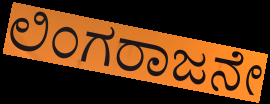
ಲಿಂಗರಾಜನೇ